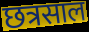
छत्रसाल